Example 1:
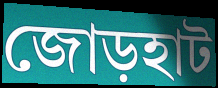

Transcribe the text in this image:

জোড়হাট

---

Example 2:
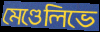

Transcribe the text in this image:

মেণ্ডেলিভে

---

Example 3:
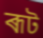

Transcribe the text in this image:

ৰূট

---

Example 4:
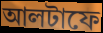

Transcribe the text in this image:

আলটাফে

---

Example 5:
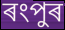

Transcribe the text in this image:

ৰংপুৰ